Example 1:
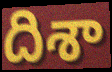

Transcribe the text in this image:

దిశా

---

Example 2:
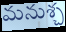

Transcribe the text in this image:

మనుశ్చ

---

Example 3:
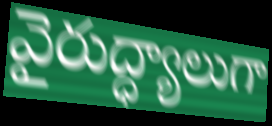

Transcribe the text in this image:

వైరుద్ధ్యాలుగా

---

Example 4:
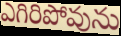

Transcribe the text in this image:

ఎగిరిపోవును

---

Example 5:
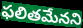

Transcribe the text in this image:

ఫలితమేనని